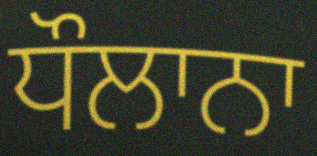
ਧੌਲਾਨਾ